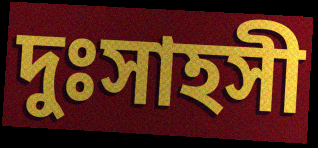
দুঃসাহসী